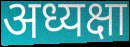
अध्यक्षा